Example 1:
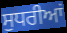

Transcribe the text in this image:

ਸੁਧਰੀਆਂ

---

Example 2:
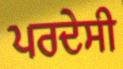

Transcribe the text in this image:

ਪਰਦੇਸੀ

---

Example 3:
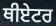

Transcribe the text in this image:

ਥੀਏਟਰ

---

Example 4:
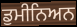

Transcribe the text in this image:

ਡੁਮੀਨਿਅਨ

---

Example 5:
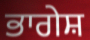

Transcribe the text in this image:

ਭਾਗੇਸ਼